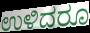
ಉಳಿದರೂ